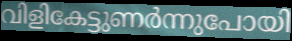
വിളികേട്ടുണർന്നുപോയി